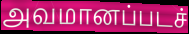
அவமானப்படச்